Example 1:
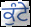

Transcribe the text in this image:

ਕੁੰਟੇ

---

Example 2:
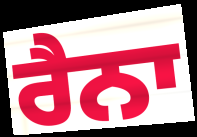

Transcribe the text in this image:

ਰੈਨਾ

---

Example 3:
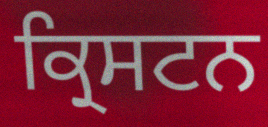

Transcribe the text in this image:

ਕ੍ਰਿਸਟਨ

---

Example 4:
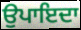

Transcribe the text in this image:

ਉਪਾਇਦਾ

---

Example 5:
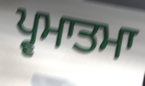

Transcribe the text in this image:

ਪ੍ਵਮਾਤਮਾ